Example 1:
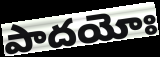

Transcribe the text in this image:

పాదయోః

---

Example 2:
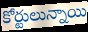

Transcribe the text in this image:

కోర్టులున్నాయి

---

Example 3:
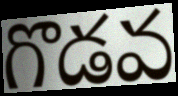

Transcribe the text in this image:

గొడవ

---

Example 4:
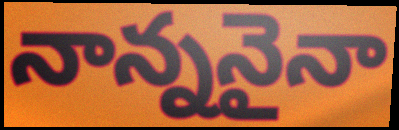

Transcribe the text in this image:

నాన్ననైనా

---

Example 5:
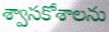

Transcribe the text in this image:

శ్వాసకోశాలను